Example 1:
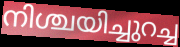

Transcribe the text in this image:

നിശ്ചയിച്ചുറച്ച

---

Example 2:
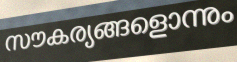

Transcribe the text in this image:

സൗകര്യങ്ങളൊന്നും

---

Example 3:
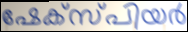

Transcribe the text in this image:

ഷേക്സ്പിയർ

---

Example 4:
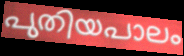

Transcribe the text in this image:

പുതിയപാലം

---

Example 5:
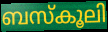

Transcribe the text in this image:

ബസ്കൂലി